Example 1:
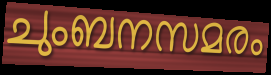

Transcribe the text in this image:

ചുംബനസമരം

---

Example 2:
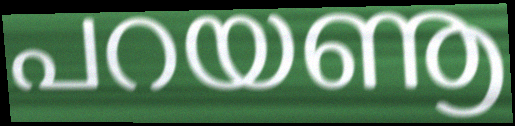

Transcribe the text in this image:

പറയണൂ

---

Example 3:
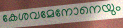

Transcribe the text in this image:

കേശവമേനോനെയും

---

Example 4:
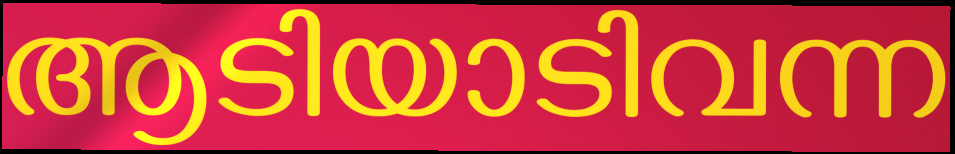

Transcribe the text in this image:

ആടിയാടിവന്ന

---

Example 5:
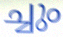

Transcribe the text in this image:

ച്ചും